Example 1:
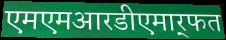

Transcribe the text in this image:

एमएमआरडीएमार्फत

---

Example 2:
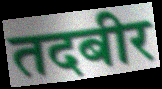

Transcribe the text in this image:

तदबीर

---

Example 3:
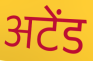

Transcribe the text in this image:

अटेंड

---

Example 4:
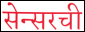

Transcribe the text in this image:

सेन्सरची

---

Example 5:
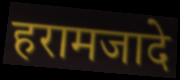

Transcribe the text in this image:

हरामजादे